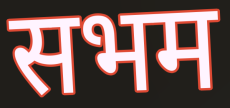
सभम